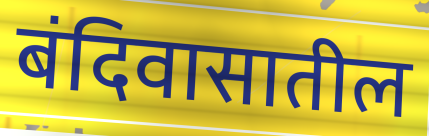
बंदिवासातील